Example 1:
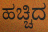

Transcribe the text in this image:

ಹಚ್ಚಿದ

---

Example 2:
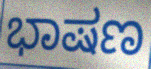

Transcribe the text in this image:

ಭಾಷಣ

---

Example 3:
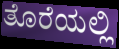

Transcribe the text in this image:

ತೊರೆಯಲ್ಲಿ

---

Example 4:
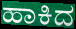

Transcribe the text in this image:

ಹಾಕಿದ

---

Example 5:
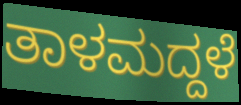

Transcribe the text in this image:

ತಾಳಮದ್ದಳೆ